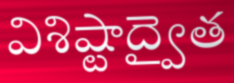
విశిష్టాద్వైత